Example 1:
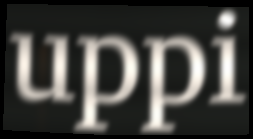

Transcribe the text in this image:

uppi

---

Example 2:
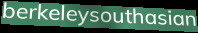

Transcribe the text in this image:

berkeleysouthasian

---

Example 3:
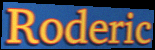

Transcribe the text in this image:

Roderic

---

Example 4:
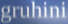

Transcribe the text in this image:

gruhini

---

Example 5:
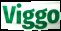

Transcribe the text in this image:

Viggo